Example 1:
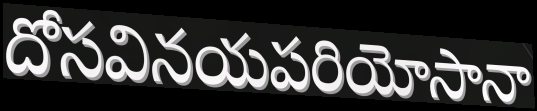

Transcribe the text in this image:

దోసవినయపరియోసానా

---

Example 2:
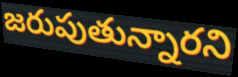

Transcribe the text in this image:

జరుపుతున్నారని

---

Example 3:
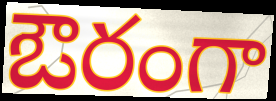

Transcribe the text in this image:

ఔరంగా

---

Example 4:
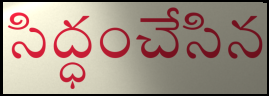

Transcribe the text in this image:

సిద్ధంచేసిన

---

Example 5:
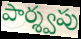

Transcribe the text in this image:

పార్శ్వపు